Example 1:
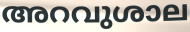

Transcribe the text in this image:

അറവുശാല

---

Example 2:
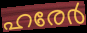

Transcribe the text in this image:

ഹരേർ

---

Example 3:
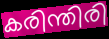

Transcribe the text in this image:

കരിന്തിരി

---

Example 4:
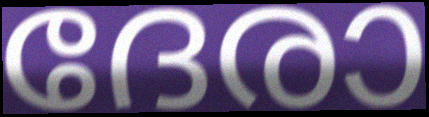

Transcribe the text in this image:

ദേരാ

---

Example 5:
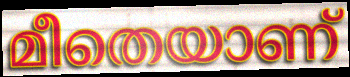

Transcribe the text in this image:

മീതെയാണ്